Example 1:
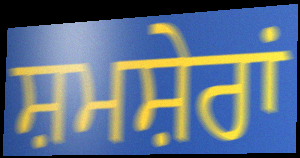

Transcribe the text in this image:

ਸ਼ਮਸ਼ੇਰਾਂ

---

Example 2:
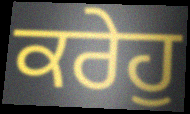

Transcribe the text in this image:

ਕਰੇਹੁ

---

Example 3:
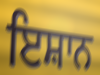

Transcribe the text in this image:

ਇਸ਼ਾਨ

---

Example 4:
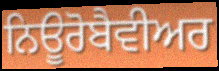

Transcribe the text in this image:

ਨਿਊਰੋਬੈਵੀਅਰ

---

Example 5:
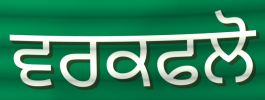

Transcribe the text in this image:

ਵਰਕਫਲੋ